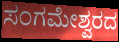
ಸಂಗಮೇಶ್ವರದ